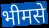
भीमसे